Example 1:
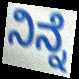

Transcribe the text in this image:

ನಿನ್ನೆ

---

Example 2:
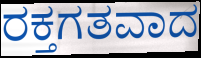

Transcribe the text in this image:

ರಕ್ತಗತವಾದ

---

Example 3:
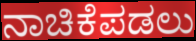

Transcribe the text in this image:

ನಾಚಿಕೆಪಡಲು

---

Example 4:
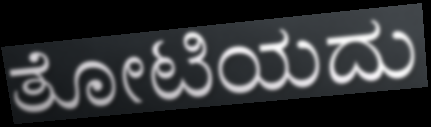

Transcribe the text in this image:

ತೋಟಿಯದು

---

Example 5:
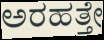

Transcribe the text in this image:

ಅರಹತ್ತೇ